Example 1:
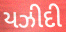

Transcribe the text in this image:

યઝીદી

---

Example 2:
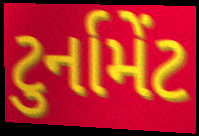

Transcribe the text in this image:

ટુર્નામેંટ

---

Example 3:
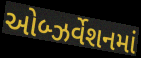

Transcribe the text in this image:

ઓબ્ઝર્વેશનમાં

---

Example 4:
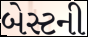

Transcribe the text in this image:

બેસ્ટની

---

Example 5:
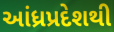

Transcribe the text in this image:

આંધ્રપ્રદેશથી